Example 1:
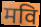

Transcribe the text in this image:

मवि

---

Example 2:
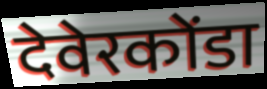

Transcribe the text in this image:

देवेरकोंडा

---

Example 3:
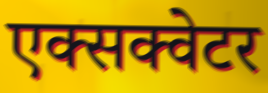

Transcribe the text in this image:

एक्सक्वेटर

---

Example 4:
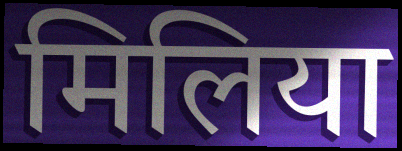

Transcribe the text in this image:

मिलिया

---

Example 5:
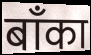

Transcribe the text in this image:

बाँका